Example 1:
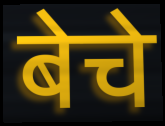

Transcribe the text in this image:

बेचे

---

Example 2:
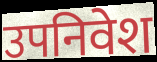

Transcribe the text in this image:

उपनिवेश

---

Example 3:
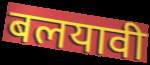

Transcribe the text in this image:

बलयावी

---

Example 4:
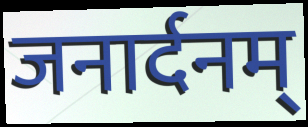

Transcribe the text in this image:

जनार्दनम्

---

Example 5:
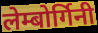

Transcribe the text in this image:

लेम्बोर्गिनी